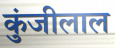
कुंजीलाल